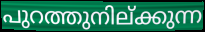
പുറത്തുനില്ക്കുന്ന